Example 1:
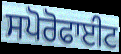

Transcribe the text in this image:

ਸਪੋਰੋਫਾਈਟ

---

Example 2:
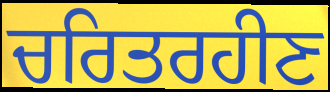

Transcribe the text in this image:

ਚਰਿਤਰਹੀਣ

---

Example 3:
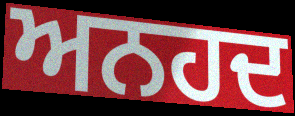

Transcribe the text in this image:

ਅਨਹਦ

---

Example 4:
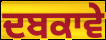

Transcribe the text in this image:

ਦਬਕਾਵੇ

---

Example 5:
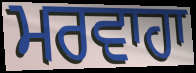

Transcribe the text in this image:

ਮਰਵਾਹਾ